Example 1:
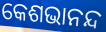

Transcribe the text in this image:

କେଶଭାନନ୍ଦ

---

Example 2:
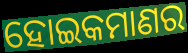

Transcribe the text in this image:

ହୋଇକମାଣର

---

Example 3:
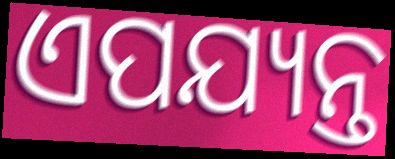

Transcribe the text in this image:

ଏପଯ୍ୟନ୍ତ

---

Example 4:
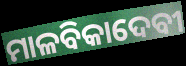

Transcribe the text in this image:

ମାଳବିକାଦେବୀ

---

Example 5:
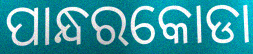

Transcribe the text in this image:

ପାନ୍ଧରକୋଡା